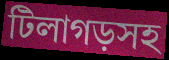
টিলাগড়সহ